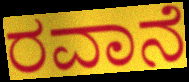
ರವಾನೆ